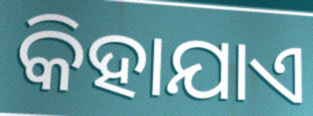
କିହାଯାଏ